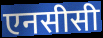
एनसीसी